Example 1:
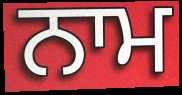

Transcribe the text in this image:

ਨਾਮ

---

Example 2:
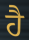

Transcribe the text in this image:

ਹੈ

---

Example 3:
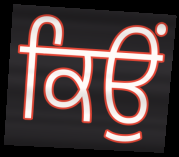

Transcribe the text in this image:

ਕਿਉਂ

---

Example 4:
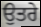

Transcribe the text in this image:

ਉਤਰੇ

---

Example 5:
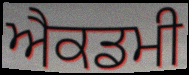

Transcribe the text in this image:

ਐਕਡਮੀ